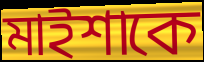
মাইশাকে